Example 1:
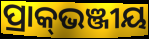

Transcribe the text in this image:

ପ୍ରାକ୍‌ଭଞ୍ଜୀୟ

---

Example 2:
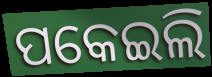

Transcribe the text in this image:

ପକେଇଲି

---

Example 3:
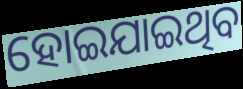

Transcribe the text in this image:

ହୋଇଯାଇଥିବ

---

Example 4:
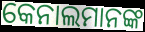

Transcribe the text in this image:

କେନାଲମାନଙ୍କ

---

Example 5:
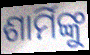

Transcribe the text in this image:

ଶାର୍ମିଙ୍କୁ